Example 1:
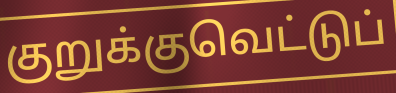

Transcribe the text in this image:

குறுக்குவெட்டுப்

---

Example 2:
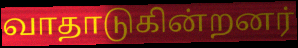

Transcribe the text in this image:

வாதாடுகின்றனர்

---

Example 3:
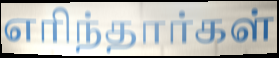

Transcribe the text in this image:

எரிந்தார்கள்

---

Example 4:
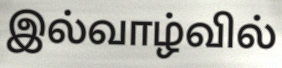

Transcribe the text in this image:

இல்வாழ்வில்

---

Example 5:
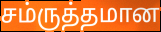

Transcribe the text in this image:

சம்ருத்தமான